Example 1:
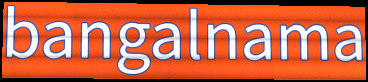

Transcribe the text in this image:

bangalnama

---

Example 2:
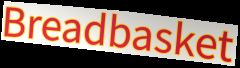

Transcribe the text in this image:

Breadbasket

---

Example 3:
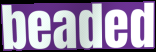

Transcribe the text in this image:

beaded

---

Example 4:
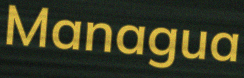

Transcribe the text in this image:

Managua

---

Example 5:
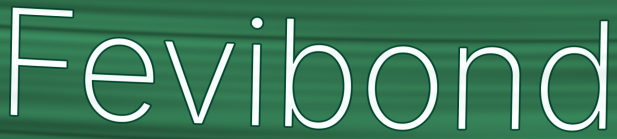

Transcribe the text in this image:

Fevibond